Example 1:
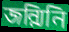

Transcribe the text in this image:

জন্মিনি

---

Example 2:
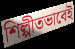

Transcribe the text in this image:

শিল্পীতভাবেই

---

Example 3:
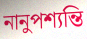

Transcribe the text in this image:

নানুপশ্যন্তি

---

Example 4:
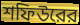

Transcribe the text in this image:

শফিউরের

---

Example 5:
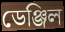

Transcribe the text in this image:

ডেঞ্জিল